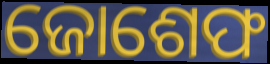
ଜୋଶେଫ